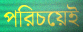
পরিচয়েই